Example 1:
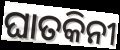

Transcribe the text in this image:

ଘାତକିନୀ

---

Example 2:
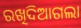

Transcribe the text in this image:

ରଖିଦିଆଗଲା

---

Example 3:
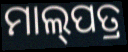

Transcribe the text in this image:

ମାଲ୍‌ପତ୍ର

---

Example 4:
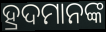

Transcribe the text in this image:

ହ୍ରଦମାନଙ୍କ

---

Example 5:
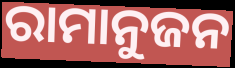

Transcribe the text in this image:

ରାମାନୁଜନ